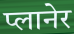
प्लानेर